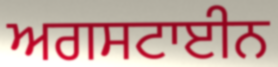
ਅਗਸਟਾਈਨ